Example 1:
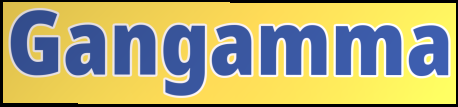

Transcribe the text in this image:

Gangamma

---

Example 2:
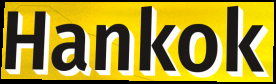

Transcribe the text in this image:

Hankok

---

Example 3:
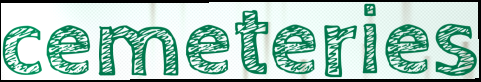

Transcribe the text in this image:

cemeteries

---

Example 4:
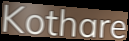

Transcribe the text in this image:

Kothare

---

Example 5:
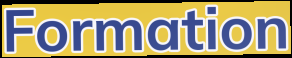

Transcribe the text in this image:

Formation